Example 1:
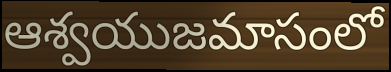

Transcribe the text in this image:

ఆశ్వయుజమాసంలో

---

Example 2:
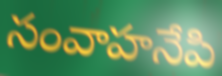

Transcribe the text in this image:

సంవాహనేపి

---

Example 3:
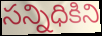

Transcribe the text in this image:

సన్నిధికిని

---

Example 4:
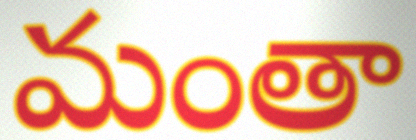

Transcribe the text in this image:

మంతా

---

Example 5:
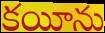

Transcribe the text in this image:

కయీను